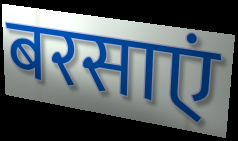
बरसाएं